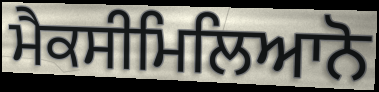
ਮੈਕਸੀਮਿਲਿਆਨੋ